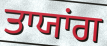
ਤਾਯਾਂਗ